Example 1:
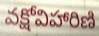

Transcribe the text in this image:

వక్షోవిహారిణి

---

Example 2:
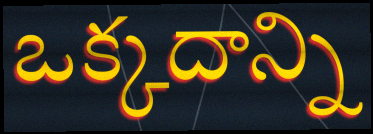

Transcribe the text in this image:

ఒక్కదాన్ని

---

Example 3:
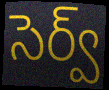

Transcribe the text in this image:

సెర్వ్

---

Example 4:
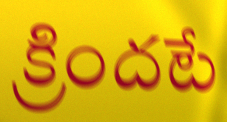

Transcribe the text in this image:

క్రిందటే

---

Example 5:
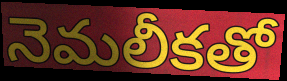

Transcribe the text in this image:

నెమలీకతో